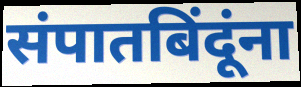
संपातबिंदूंना